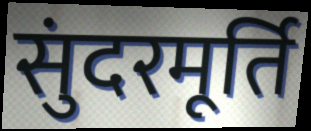
सुंदरमूर्ति